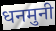
धनमुनी